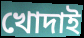
খোদাই